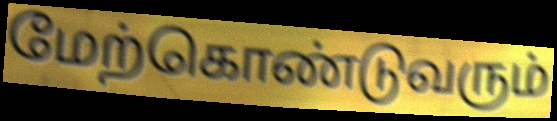
மேற்கொண்டுவரும்